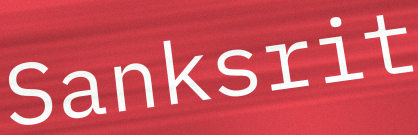
Sanksrit